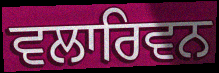
ਵਲਾਰਿਵਨ